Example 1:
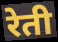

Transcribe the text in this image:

रेती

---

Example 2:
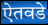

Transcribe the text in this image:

ऐतवडे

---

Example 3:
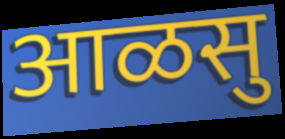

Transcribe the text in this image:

आळसु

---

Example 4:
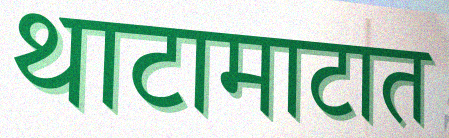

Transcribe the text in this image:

थाटामाटात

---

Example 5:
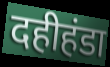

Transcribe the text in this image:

दहीहंडा